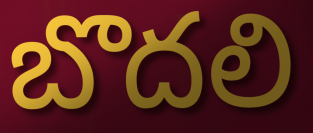
బొదలి